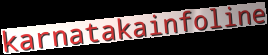
karnatakainfoline